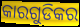
କାରଗୁଡିକର